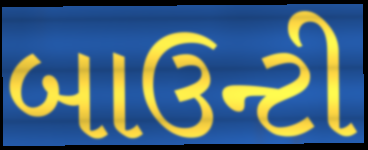
બાઉન્ટી